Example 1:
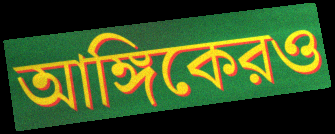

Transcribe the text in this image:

আঙ্গিকেরও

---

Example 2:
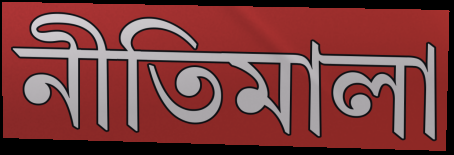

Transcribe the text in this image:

নীতিমালা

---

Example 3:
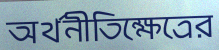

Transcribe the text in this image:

অর্থনীতিক্ষেত্রের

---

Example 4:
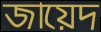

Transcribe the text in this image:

জায়েদ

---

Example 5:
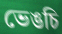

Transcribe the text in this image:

ভেঙচি